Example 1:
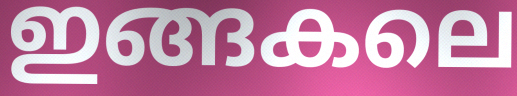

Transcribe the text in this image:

ഇങ്ങകലെ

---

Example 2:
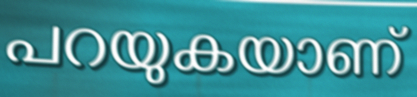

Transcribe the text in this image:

പറയുകയാണ്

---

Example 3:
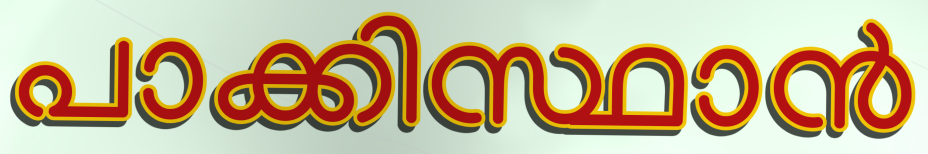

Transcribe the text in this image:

പാക്കിസ്ഥാൻ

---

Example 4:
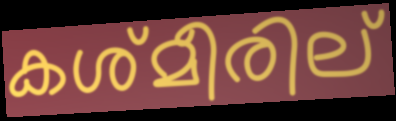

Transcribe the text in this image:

കശ്മീരില്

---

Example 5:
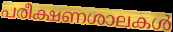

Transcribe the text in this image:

പരീക്ഷണശാലകൾ